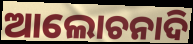
ଆଲୋଚନାଦି